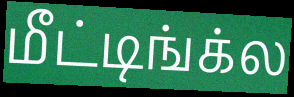
மீட்டிங்க்ல